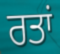
ਰਤਾਂ